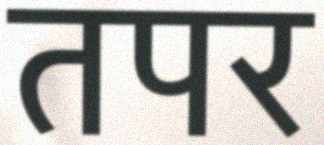
तपर